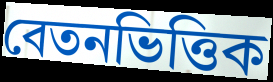
বেতনভিত্তিক